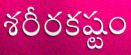
శరీరకష్టం